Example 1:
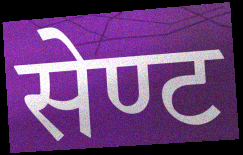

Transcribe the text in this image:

सेण्ट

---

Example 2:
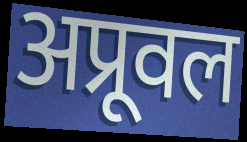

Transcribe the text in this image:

अप्रूवल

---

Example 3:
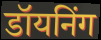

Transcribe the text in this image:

डॉयनिंग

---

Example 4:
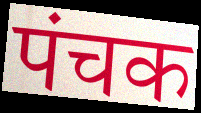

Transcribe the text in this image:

पंचक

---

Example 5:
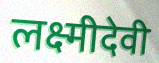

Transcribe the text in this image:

लक्ष्मीदेवी